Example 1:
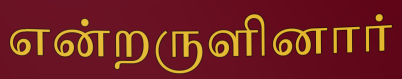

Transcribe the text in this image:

என்றருளினார்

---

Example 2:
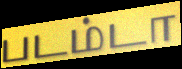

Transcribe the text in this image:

படம்டா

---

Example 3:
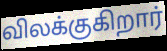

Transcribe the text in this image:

விலக்குகிறார்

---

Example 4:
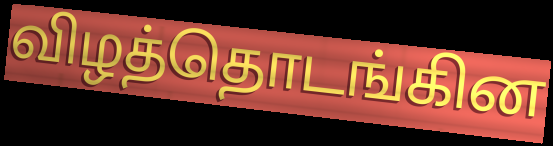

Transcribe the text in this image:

விழத்தொடங்கின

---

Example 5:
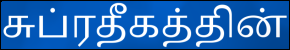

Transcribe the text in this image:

சுப்ரதீகத்தின்